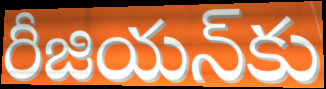
రీజియన్‌కు